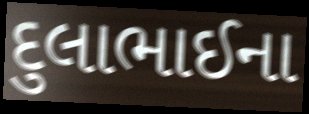
દુલાભાઈના